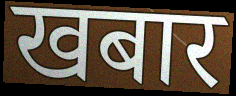
खबार